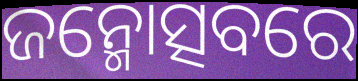
ଜନ୍ମୋତ୍ସବରେ